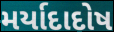
મર્યાદાદોષ